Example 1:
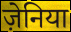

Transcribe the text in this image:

ज़ेनिया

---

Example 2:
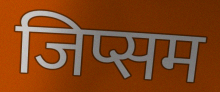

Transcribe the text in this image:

जिप्सम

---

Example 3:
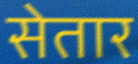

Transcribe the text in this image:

सेतार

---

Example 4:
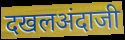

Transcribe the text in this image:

दखलअंदाजी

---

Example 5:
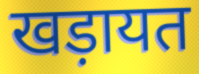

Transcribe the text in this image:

खड़ायत